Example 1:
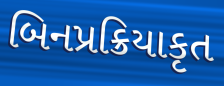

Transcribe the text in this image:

બિનપ્રક્રિયાકૃત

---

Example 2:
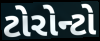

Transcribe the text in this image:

ટોરોન્ટો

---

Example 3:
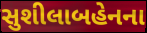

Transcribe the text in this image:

સુશીલાબહેનના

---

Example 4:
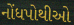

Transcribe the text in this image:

નોંધપોથીઓ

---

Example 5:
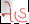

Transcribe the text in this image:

નેહ